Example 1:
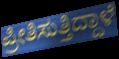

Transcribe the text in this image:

ಪ್ರೀತಿಸುತ್ತಿದ್ದಾಳೆ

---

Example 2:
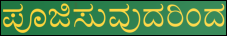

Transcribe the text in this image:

ಪೂಜಿಸುವುದರಿಂದ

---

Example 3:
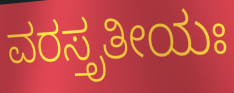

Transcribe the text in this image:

ವರಸ್ತೃತೀಯಃ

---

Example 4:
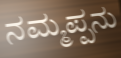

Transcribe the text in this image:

ನಮ್ಮಪ್ಪನು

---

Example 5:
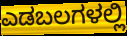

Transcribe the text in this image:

ಎಡಬಲಗಳಲ್ಲಿ